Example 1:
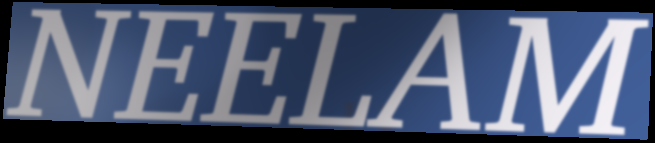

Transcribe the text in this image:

NEELAM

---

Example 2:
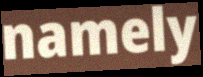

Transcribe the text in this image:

namely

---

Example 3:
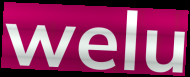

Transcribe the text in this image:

welu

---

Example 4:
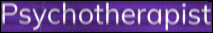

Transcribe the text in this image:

Psychotherapist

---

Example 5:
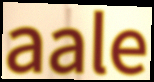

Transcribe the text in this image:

aale